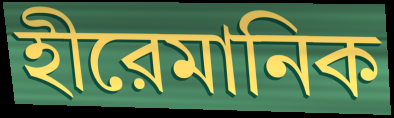
হীরেমানিক